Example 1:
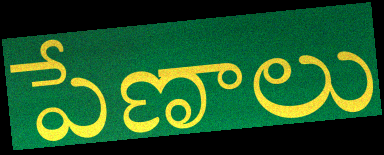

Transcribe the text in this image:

పేణాలు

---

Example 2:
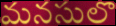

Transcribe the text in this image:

మనసులొ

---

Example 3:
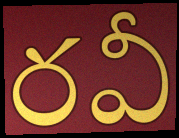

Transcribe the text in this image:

రవీ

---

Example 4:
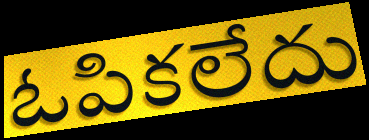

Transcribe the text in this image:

ఓపికలేదు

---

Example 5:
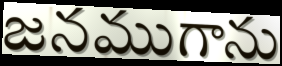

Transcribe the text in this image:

జనముగాను